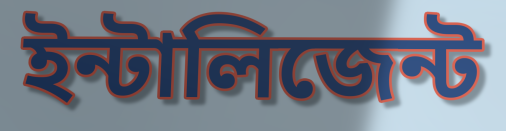
ইন্টালিজেন্ট